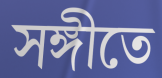
সঙ্গীতে